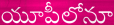
యూపీలోనూ